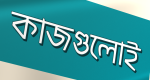
কাজগুলোই